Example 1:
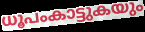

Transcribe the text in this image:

ധൂപംകാട്ടുകയും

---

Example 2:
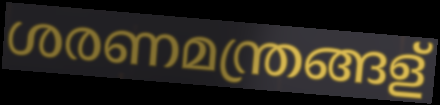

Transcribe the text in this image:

ശരണമന്ത്രങ്ങള്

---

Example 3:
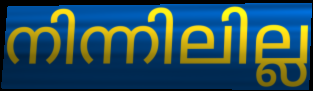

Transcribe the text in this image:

നിന്നിലില്ല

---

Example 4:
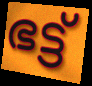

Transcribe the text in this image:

ഭട്ട്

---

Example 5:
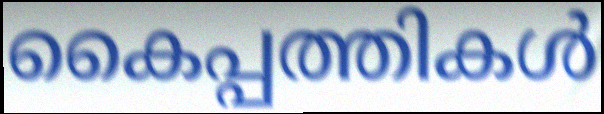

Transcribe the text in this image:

കൈപ്പത്തികൾ